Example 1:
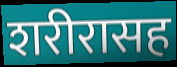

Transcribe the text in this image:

शरीरासह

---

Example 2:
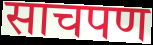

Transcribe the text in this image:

साचपण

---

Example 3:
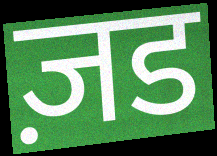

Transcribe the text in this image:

ज़ड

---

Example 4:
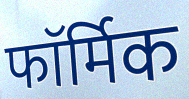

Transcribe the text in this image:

फॉर्मिक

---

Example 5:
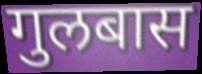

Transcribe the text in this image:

गुलबास